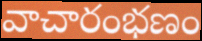
వాచారంభణం